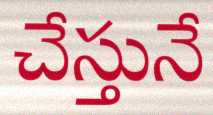
చేస్తునే